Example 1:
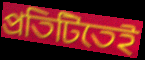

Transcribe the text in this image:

প্রতিটিতেই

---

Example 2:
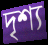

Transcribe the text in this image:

দৃশ্য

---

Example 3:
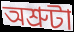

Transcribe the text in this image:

অশ্রুটা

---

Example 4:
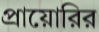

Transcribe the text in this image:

প্রায়োরির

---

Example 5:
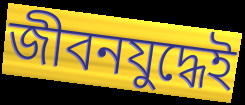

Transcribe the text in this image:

জীবনযুদ্ধেই